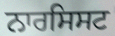
ਨਾਰਸਿਸਟ